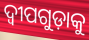
ଦ୍ୱୀପଗୁଡ଼ାକୁ